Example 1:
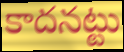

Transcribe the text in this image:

కాదనట్టు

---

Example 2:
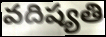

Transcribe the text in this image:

వదిష్యతి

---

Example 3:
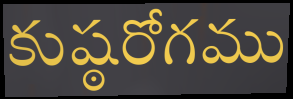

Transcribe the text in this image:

కుష్ఠరోగము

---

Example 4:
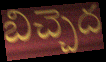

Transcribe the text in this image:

బిచ్చెద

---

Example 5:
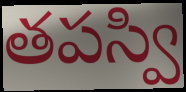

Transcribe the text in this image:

తపస్వి